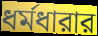
ধর্মধারার